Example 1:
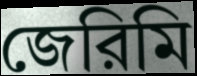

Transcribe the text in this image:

জেরিমি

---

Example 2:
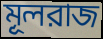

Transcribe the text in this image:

মূলরাজ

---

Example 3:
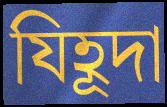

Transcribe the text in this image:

যিহূদা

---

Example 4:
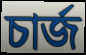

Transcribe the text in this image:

চার্জ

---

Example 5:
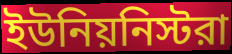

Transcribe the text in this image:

ইউনিয়নিস্টরা